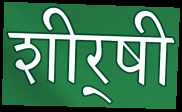
शीर्षी